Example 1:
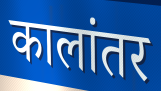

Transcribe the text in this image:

कालांतर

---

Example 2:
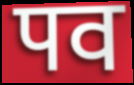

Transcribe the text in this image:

पव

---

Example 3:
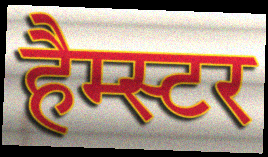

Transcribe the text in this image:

हैम्स्टर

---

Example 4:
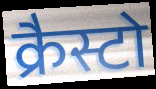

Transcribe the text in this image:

क्रैस्टो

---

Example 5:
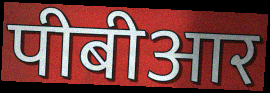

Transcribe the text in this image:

पीबीआर